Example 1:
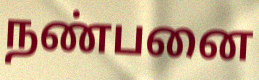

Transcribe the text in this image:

நண்பனை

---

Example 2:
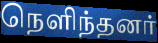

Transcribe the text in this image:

நெளிந்தனர்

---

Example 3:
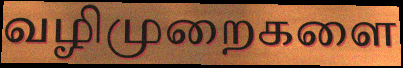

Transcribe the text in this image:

வழிமுறைகளை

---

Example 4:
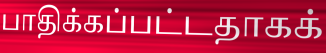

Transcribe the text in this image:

பாதிக்கப்பட்டதாகக்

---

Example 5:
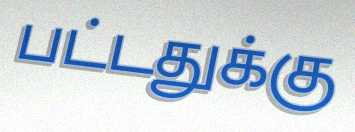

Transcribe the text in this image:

பட்டதுக்கு